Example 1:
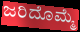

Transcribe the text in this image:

ಜರಿದೊಮ್ಮೆ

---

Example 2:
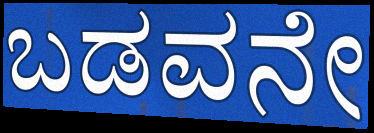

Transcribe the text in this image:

ಬಡವನೇ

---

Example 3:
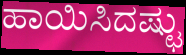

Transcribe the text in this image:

ಹಾಯಿಸಿದಷ್ಟು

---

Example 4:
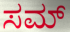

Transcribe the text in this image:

ಸಮ್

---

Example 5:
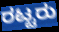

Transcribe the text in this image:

ರಟ್ಟರು